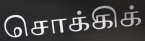
சொக்கிக்